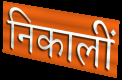
निकालीं